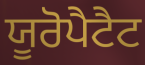
ਯੂਰੋਪੈਟੈਟ